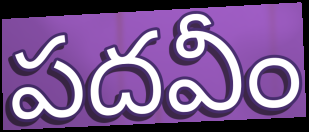
పదవీం